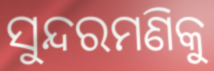
ସୁନ୍ଦରମଣିକୁ